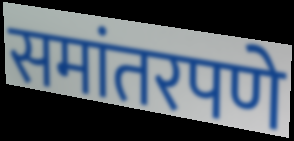
समांतरपणे